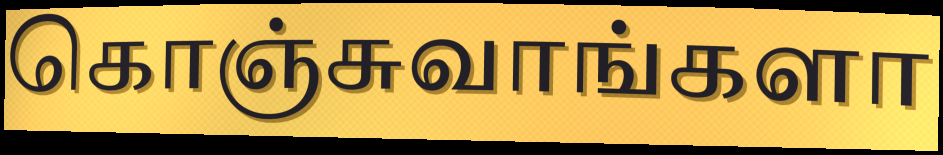
கொஞ்சுவாங்களா